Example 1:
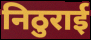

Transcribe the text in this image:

निठुराई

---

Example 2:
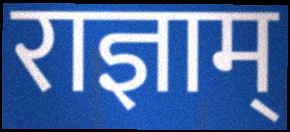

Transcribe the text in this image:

राज्ञाम्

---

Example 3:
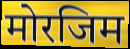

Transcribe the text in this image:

मोरजिम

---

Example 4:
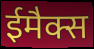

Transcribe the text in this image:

ईमैक्स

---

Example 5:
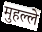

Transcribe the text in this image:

मुहल्ले